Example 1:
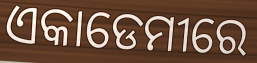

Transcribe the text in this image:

ଏକାଡେମୀରେ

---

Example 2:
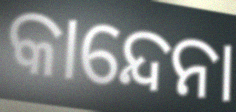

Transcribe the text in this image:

କାନ୍ଦେନା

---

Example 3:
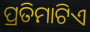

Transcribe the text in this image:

ପ୍ରତିମାଟିଏ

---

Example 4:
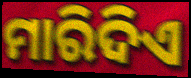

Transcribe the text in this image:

ମାରିଦିଏ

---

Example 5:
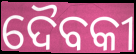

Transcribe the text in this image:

ଦୈବକୀ